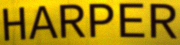
HARPER